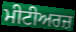
ਮੀਟੀਅਰਜ਼